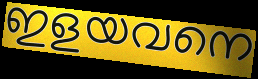
ഇളയവനെ